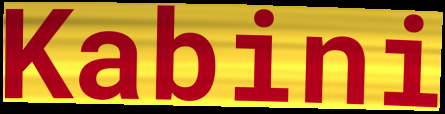
Kabini